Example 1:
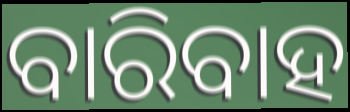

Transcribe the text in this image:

ବାରିବାହ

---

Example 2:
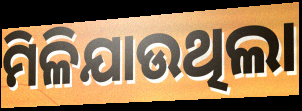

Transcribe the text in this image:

ମିଳିଯାଉଥିଲା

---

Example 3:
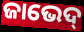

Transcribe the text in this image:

ଜାଭେଦ୍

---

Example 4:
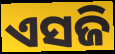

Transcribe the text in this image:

ଏସଜି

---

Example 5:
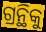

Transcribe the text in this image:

ଗ୍ରନ୍ଥିକୁ